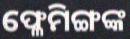
ଫ୍ଳେମିଙ୍ଗଙ୍କ